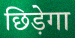
छिड़ेगा